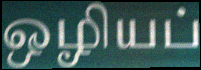
ஒழியப்